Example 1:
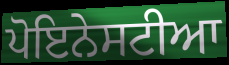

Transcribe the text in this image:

ਪੋਇਨੇਸਟੀਆ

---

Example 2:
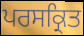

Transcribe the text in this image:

ਪਰਸਕ੍ਰਿਤ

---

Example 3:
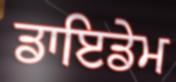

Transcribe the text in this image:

ਡਾਇਡੇਮ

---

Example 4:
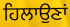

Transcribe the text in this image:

ਹਿਲਾਉਣਾਂ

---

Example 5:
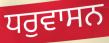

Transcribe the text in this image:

ਧਰੁਵਾਸਨ